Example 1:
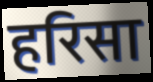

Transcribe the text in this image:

हरिसा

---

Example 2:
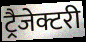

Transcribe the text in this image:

ट्रैजेक्टरी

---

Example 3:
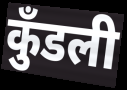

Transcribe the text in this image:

कुँडली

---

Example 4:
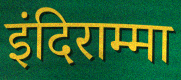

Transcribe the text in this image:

इंदिराम्मा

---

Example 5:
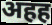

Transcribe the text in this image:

अहह